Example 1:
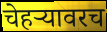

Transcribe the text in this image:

चेहर्‍यावरच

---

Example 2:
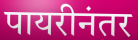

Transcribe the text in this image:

पायरीनंतर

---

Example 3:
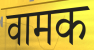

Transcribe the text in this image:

वामक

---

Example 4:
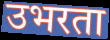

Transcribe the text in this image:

उभरता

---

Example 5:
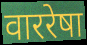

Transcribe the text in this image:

वाररेषा